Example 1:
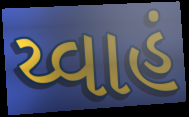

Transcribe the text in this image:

ય્વાહં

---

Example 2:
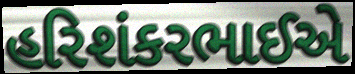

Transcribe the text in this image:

હરિશંકરભાઈએ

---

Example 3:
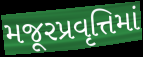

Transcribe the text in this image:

મજૂરપ્રવૃત્તિમાં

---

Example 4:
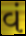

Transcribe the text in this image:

વં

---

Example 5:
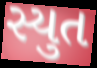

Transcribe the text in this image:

સ્યુત